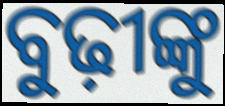
ବୁଢ଼ୀଙ୍କୁ